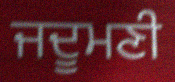
ਜਦੂਮਣੀ